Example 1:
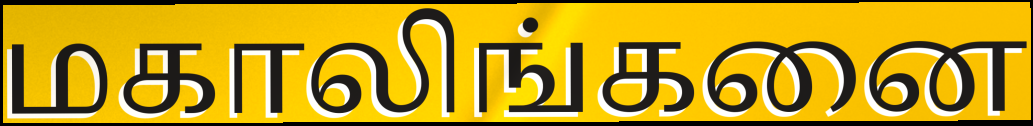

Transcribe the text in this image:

மகாலிங்கனை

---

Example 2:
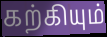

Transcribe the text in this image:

கற்கியும்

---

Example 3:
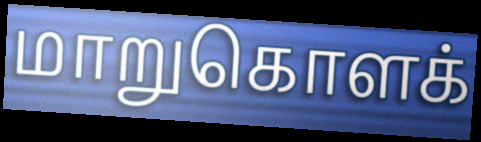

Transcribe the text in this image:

மாறுகொளக்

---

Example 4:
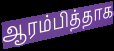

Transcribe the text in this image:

ஆரம்பித்தாக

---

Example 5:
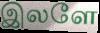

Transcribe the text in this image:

இலளே